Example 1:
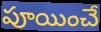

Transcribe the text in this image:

పూయించే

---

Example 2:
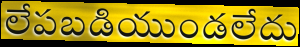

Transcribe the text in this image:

లేపబడియుండలేదు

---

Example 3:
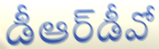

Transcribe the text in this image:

డీఆర్‌డీవో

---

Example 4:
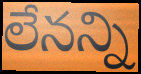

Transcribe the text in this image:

లేనన్ని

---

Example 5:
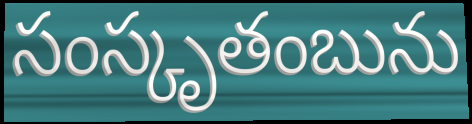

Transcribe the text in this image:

సంస్కృతంబును